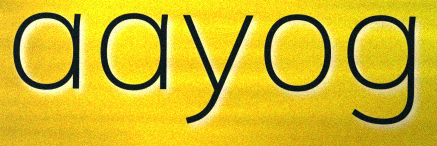
aayog